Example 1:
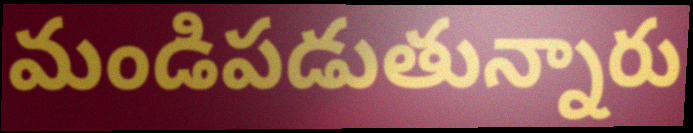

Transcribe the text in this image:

మండిపడుతున్నారు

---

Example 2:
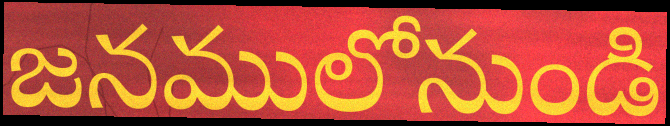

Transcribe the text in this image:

జనములోనుండి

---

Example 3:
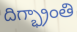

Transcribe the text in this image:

దిగ్భ్రాంతి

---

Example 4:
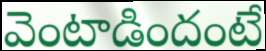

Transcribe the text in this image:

వెంటాడిందంటే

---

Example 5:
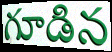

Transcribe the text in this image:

గూడిన